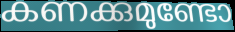
കണക്കുമുണ്ടോ